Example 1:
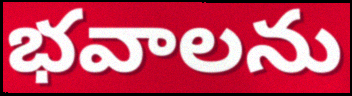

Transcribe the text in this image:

భవాలను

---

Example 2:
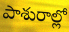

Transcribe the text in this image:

పాశురాల్లో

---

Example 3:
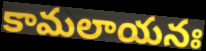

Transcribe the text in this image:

కామలాయనః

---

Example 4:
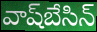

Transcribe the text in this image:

వాష్‌బేసిన్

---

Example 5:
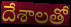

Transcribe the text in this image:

దేశాలతో